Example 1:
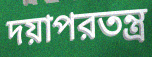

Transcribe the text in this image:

দয়াপরতন্ত্র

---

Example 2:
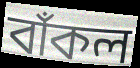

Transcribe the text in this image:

বাঁকল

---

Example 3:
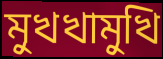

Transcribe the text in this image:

মুখখামুখি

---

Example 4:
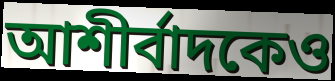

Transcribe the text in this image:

আশীর্বাদকেও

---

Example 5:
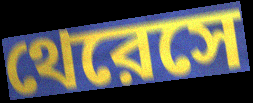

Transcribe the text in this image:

থেরেসে